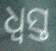
ଧ୍ବସ୍ତ